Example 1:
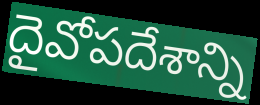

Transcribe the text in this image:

దైవోపదేశాన్ని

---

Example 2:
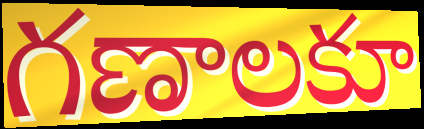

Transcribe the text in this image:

గణాలకూ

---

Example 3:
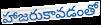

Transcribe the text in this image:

హాజరుకావడంతో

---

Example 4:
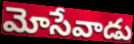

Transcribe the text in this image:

మోసేవాడు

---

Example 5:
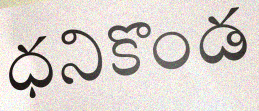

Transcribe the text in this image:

ధనికొండ